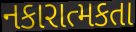
નકારાત્મકતા